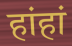
हांहां